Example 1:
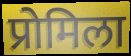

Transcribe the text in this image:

प्रोमिला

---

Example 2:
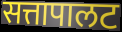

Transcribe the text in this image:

सत्तापालट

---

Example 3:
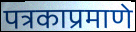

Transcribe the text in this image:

पत्रकाप्रमाणे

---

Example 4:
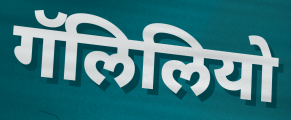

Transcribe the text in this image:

गॅलिलियो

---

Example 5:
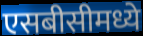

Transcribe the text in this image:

एसबीसीमध्ये